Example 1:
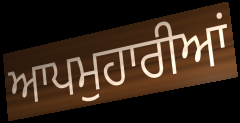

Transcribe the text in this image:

ਆਪਮੁਹਾਰੀਆਂ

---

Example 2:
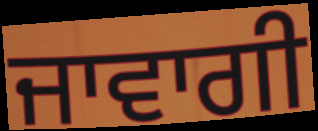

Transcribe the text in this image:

ਜਾਵਾਗੀ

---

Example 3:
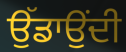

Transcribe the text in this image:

ਉੱਡਾਉਂਦੀ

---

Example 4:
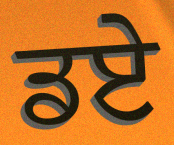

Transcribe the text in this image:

ਡਏ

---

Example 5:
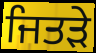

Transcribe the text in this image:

ਜਿਤੜੇ